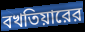
বখতিয়ারের